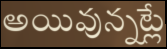
అయివున్నట్లే